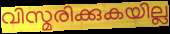
വിസ്മരിക്കുകയില്ല